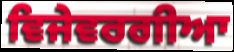
ਵਿਜੇਵਰਗੀਆ